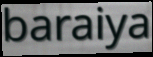
baraiya